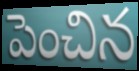
పెంచిన